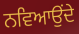
ਨਵਿਆਉਂਦੇ